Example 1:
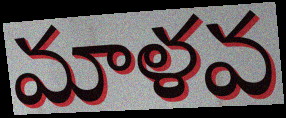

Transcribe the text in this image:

మాళవ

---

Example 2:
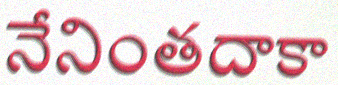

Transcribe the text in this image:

నేనింతదాకా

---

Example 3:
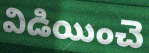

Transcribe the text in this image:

విడియించె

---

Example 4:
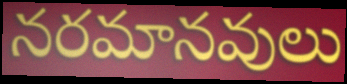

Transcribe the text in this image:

నరమానవులు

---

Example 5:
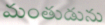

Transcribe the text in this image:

మంతుడును